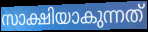
സാക്ഷിയാകുന്നത്